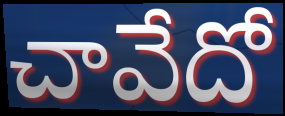
చావేదో